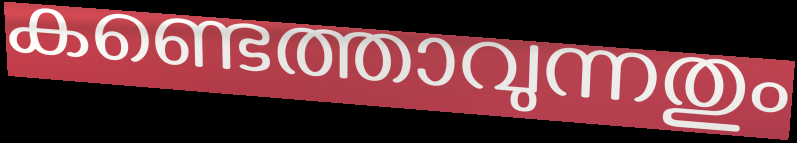
കണ്ടെത്താവുന്നതും